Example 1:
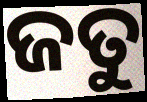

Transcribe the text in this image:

ଜତୁ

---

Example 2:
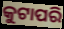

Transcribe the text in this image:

କୁଟାପରି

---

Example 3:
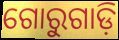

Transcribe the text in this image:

ଗୋରୁଗାଡ଼ି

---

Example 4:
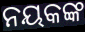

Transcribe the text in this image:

ନୟକଙ୍କ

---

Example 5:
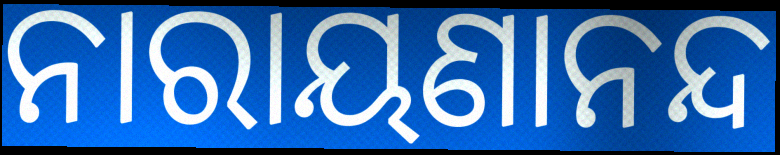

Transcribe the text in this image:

ନାରାୟଣାନନ୍ଦ